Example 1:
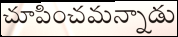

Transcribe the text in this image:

చూపించమన్నాడు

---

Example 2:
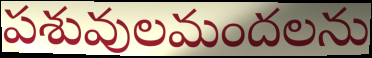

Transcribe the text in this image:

పశువులమందలను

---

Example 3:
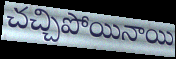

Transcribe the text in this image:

చచ్చిపోయినాయి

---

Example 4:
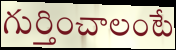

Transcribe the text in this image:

గుర్తించాలంటే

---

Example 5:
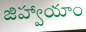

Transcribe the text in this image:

జిహ్వాయాం